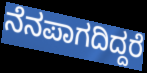
ನೆನಪಾಗದಿದ್ದರೆ